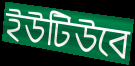
ইউটিউবে